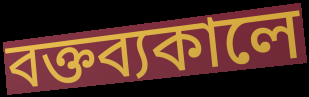
বক্তব্যকালে